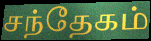
சந்தேகம்